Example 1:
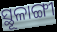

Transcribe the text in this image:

ସ୍ଥୂଳାଙ୍ଗୀ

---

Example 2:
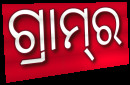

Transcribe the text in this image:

ଗ୍ରାମ୍‌ର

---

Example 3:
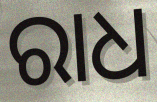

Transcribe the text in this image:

ରାଧ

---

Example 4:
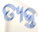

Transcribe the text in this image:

ତ୍ୟକ୍ତ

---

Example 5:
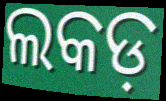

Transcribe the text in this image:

ଲକଡ଼